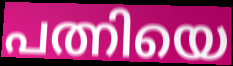
പത്നിയെ